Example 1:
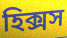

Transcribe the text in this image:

হিক্সস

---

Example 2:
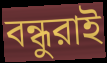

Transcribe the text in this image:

বন্ধুরাই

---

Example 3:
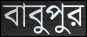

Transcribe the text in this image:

বাবুপুর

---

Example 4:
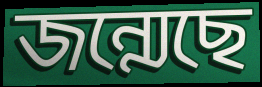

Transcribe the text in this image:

জন্মেছে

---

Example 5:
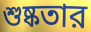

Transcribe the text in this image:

শুষ্কতার